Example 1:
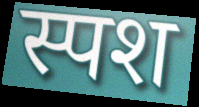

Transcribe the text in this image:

स्पश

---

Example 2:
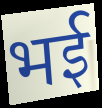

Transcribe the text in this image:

भई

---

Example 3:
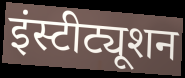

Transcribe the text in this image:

इंस्टीट्यूशन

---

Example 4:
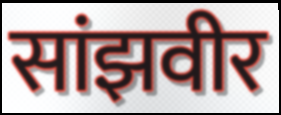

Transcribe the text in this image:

सांझवीर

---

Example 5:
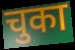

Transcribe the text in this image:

चुका